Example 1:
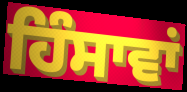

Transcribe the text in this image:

ਹਿੰਸਾਵਾਂ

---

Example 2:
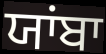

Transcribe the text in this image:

ਯਾਂਬਾ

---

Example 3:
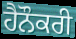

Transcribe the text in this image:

ਹੈਨੌਕਰੀ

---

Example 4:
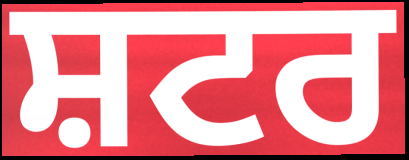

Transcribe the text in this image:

ਸ਼ਟਰ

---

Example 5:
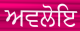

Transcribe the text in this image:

ਅਵਲੋਇ